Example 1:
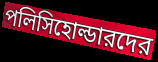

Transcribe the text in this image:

পলিসিহোল্ডারদের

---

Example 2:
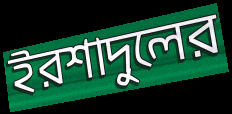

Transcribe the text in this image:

ইরশাদুলের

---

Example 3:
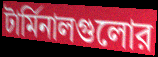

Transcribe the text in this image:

টার্মিনালগুলোর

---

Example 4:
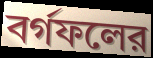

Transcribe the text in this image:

বর্গফলের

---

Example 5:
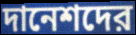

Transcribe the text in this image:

দানেশদের